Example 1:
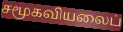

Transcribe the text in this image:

சமூகவியலைப்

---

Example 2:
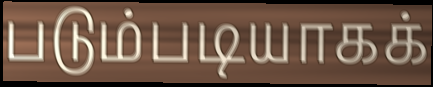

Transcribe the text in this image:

படும்படியாகக்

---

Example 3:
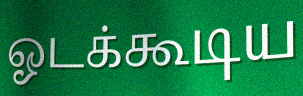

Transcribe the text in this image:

ஓடக்கூடிய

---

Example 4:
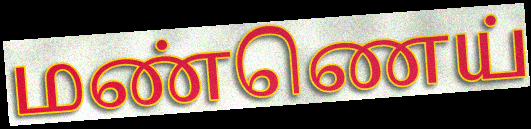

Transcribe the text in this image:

மண்ணெய்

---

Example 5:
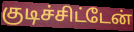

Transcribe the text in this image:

குடிச்சிட்டேன்